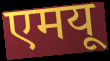
एमयू